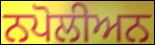
ਨਪੋਲੀਅਨ